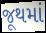
જૂથમાં